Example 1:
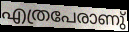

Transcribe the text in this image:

എത്രപേരാണു്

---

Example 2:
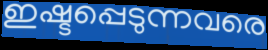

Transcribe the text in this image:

ഇഷ്ടപ്പെടുന്നവരെ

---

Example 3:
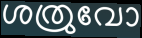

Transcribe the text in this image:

ശത്രുവോ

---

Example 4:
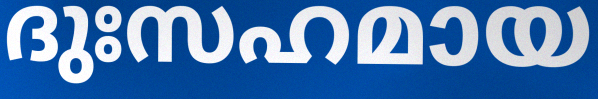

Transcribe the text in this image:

ദുഃസഹമായ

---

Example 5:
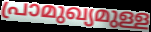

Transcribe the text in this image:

പ്രാമുഖ്യമുള്ള